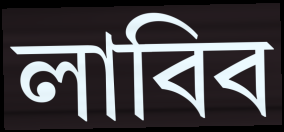
লাবিব